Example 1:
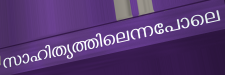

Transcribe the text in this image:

സാഹിത്യത്തിലെന്നപോലെ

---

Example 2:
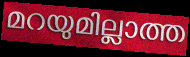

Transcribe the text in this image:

മറയുമില്ലാത്ത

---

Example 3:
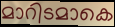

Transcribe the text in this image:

മാറിടമാകെ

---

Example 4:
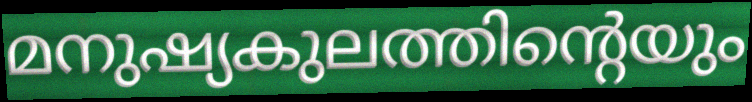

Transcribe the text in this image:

മനുഷ്യകുലത്തിന്റെയും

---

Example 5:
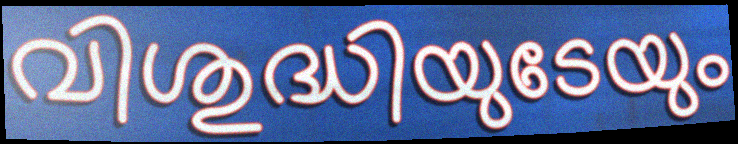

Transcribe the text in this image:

വിശുദ്ധിയുടേയും